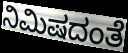
ನಿಮಿಷದಂತೆ